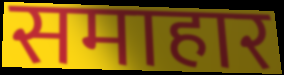
समाहार